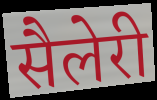
सैलेरी